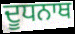
ਦੂਧਨਾਥ